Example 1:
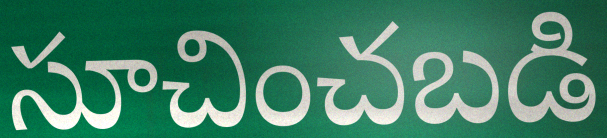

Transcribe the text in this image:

సూచించబడి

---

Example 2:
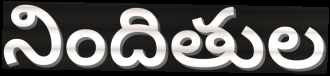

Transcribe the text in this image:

నిందితుల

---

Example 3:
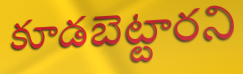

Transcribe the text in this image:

కూడబెట్టారని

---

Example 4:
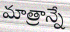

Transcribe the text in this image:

మాత్రాన్నే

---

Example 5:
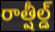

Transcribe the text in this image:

రాత్షీల్డ్